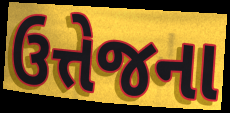
ઉત્તેજના